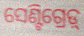
ସେଣ୍ଟିଗ୍ରେଡ଼୍